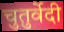
चुतुर्वेदी